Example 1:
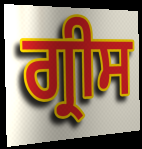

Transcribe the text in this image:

ਗ੍ਰੀਸ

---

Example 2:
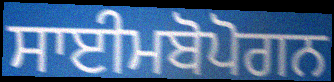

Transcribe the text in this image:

ਸਾਈਮਬੋਪੋਗਨ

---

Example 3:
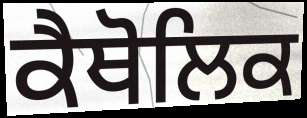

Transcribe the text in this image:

ਕੈਥੋਲਿਕ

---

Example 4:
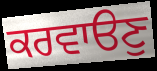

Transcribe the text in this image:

ਕਰਵਾੳਣੁ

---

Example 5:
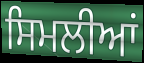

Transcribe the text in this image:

ਸਿਮਲੀਆਂ